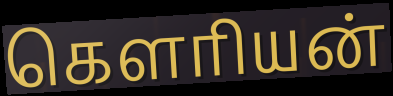
கௌரியன்